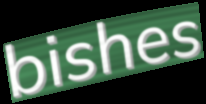
bishes